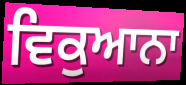
ਵਿਕੁਆਨਾ